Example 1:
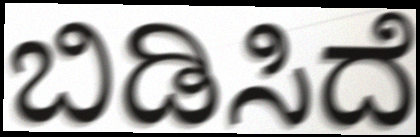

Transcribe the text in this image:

ಬಿಡಿಸಿದೆ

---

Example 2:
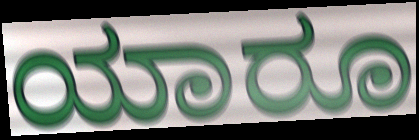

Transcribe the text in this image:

ಯಾರೂ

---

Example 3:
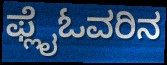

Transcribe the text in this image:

ಫ್ಲೈಓವರಿನ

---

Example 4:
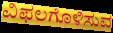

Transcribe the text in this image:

ವಿಫಲಗೊಳಿಸುವ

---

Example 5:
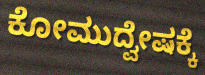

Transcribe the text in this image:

ಕೋಮುದ್ವೇಷಕ್ಕೆ